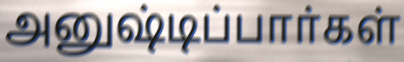
அனுஷ்டிப்பார்கள்